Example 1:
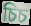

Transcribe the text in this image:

চিচ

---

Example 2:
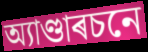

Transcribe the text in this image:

অ্যাণ্ডাৰচনে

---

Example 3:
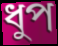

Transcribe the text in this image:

ধুপ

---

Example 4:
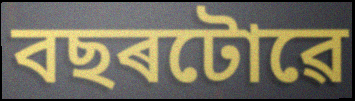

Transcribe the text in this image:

বছৰটোৱে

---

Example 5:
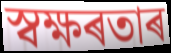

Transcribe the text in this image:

স্বক্ষৰতাৰ